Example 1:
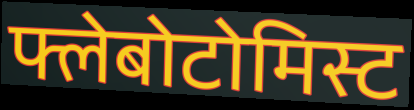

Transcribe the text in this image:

फ्लेबोटोमिस्ट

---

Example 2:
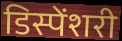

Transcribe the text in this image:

डिस्पेंशरी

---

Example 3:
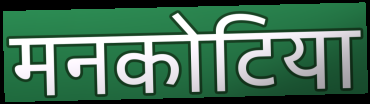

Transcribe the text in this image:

मनकोटिया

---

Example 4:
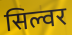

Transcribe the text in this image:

सिल्वर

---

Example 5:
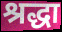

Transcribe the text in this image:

श्रद्धा